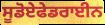
ਸੂਡੋਏਫੇਡਰਾਈਨ